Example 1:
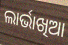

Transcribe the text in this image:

ଲାର୍ଭାଖିଆ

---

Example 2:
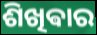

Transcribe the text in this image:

ଶିଖିଵାର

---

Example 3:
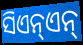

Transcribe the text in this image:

ସିଏନ୍ଏନ୍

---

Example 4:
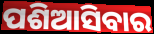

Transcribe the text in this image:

ପଶିଆସିବାର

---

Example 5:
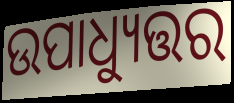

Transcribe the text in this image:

ଉପାଧ୍ୟୁତ୍ତର